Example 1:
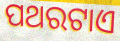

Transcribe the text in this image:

ପଥରଟାଏ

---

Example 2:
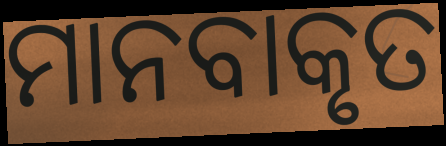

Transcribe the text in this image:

ମାନବାକୃତ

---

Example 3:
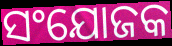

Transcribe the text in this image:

ସଂଯୋଜକ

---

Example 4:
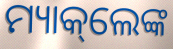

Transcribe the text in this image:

ମ୍ୟାକ୍‌ଲେଙ୍କ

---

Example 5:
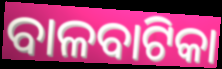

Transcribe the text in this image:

ବାଳବାଟିକା